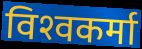
विश्वकर्मा